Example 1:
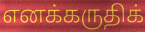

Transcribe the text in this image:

எனக்கருதிக்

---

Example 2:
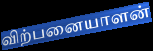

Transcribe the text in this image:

விற்பனையாளன்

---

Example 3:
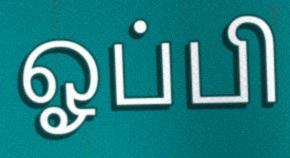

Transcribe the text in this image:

ஓப்பி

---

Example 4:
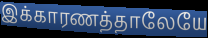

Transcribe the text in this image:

இக்காரணத்தாலேயே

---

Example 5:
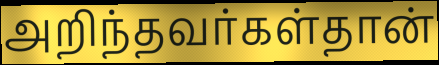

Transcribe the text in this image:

அறிந்தவர்கள்தான்